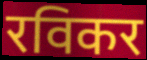
रविकर